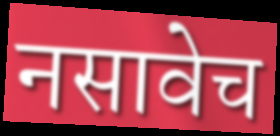
नसावेच